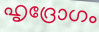
ഹൃദ്രോഗം